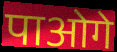
पाओगे